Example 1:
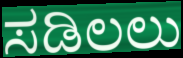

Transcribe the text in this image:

ಸಡಿಲಲು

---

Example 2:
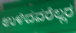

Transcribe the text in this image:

ಉಳಿದವರೆಲ್ಲರ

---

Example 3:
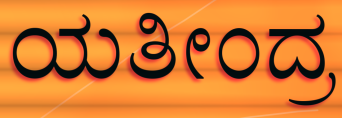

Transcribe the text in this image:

ಯತೀಂದ್ರ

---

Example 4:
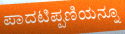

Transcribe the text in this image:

ಪಾದಟಿಪ್ಪಣಿಯನ್ನೂ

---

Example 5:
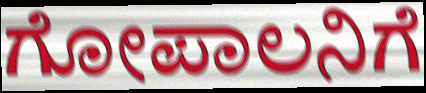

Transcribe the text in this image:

ಗೋಪಾಲನಿಗೆ